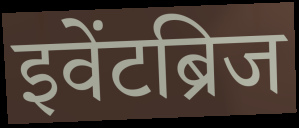
इवेंटब्रिज